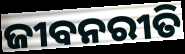
ଜୀବନରୀତି